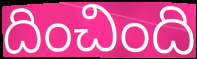
దించింది